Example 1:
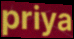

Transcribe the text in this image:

priya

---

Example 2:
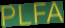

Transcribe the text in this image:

PLFA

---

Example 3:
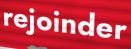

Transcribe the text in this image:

rejoinder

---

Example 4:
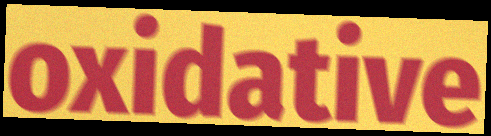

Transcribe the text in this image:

oxidative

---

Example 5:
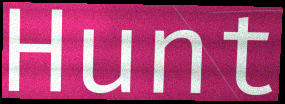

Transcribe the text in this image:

Hunt